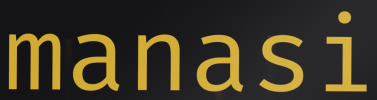
manasi